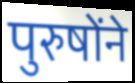
पुरुषोंने